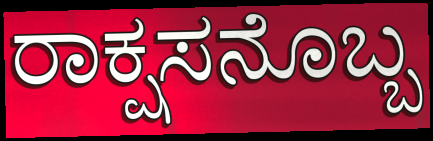
ರಾಕ್ಷಸನೊಬ್ಬ